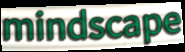
mindscape